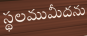
స్థలముమీదను